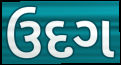
ઉદગ